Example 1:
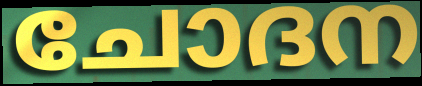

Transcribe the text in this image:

ചോദന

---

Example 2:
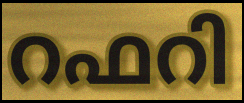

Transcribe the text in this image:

റഫറി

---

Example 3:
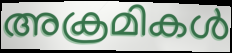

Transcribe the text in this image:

അക്രമികൾ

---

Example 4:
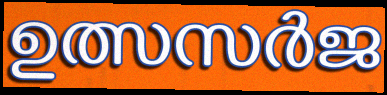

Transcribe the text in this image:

ഉത്സസർജ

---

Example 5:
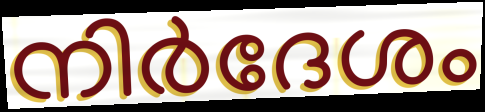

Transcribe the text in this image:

നിർദേശം